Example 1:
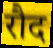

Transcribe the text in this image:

रौद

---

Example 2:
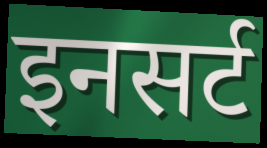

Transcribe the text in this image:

इनसर्ट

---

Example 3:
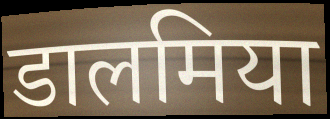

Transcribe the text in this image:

डालमिया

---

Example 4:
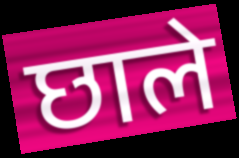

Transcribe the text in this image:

छाले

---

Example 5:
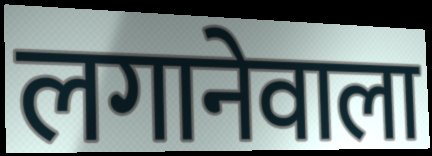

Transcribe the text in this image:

लगानेवाला